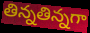
తిన్నతిన్నగా